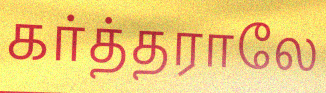
கர்த்தராலே